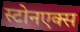
स्टोनएक्स